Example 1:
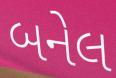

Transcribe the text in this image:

બનેલ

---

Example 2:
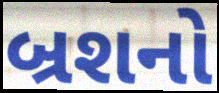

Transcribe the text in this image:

બ્રશનો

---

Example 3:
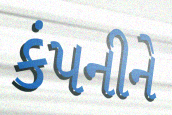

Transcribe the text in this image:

કંપનીને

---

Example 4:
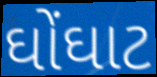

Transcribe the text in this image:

ઘોંઘાટ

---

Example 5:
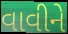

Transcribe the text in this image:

વાવીને